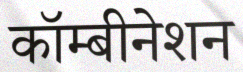
कॉम्बीनेशन